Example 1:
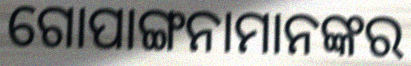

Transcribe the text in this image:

ଗୋପାଙ୍ଗନାମାନଙ୍କର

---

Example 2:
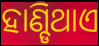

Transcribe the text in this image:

ହାଣ୍ଡିଥାଏ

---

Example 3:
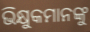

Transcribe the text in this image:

ଭିକ୍ଷୁକମାନଙ୍କୁ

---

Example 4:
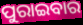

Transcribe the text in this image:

ପୁରାଇବାର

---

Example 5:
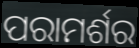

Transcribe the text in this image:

ପରାମର୍ଶର